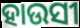
ହାଉସୀ